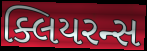
ક્લિયરન્સ